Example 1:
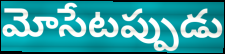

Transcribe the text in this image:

మోసేటప్పుడు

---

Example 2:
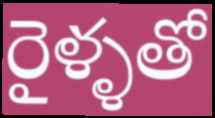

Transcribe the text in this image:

రైళ్ళతో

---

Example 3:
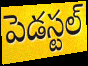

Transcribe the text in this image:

పెడస్టల్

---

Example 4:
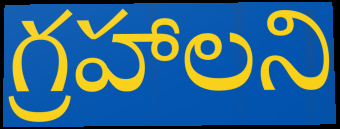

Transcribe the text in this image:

గ్రహాలని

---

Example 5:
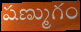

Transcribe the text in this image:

షణ్ముగం